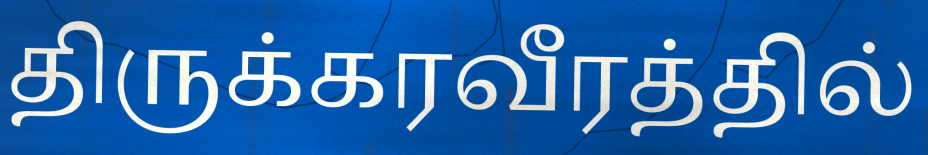
திருக்கரவீரத்தில்